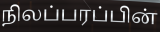
நிலப்பரப்பின்